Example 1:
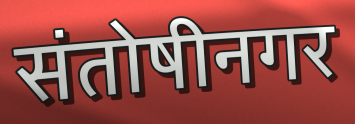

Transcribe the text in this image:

संतोषीनगर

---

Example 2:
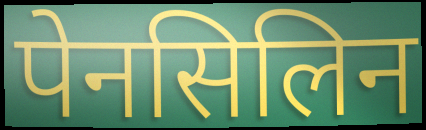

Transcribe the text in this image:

पेनसिलिन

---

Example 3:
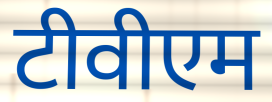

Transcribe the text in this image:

टीवीएम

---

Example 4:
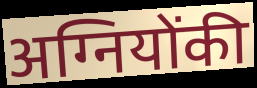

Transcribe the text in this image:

अग्नियोंकी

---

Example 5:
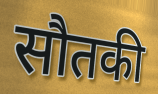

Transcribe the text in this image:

सौतकी